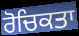
ਰੋਚਿਕਤਾ